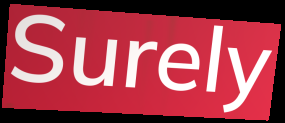
Surely